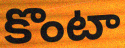
కొంటా